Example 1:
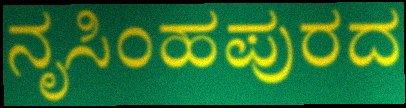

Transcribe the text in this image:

ನೃಸಿಂಹಪುರದ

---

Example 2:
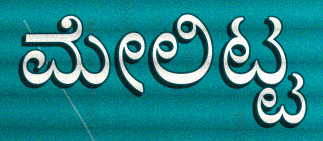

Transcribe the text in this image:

ಮೇಲಿಟ್ಟ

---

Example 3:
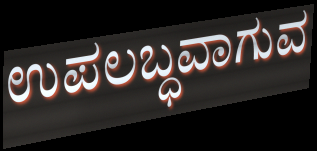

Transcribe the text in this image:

ಉಪಲಬ್ಧವಾಗುವ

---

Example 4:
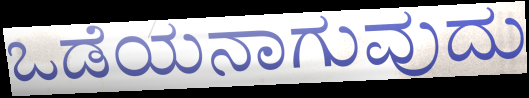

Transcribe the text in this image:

ಒಡೆಯನಾಗುವುದು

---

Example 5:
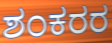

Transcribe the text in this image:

ಶಂಕರರ